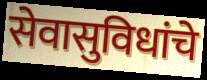
सेवासुविधांचे